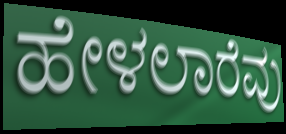
ಹೇಳಲಾರೆವು